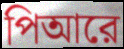
পিআরে